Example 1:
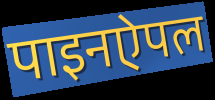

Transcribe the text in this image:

पाइनऐपल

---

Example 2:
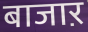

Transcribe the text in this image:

बाजाऱ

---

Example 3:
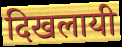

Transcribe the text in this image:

दिखलायी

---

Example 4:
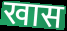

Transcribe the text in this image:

खास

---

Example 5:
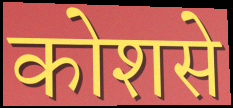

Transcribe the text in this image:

कोशसे